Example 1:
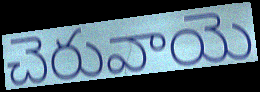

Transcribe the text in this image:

చెరువాయె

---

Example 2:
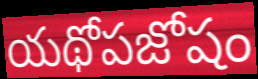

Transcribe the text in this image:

యథోపజోషం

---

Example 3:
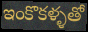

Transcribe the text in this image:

ఇంకొకళ్ళతో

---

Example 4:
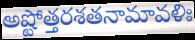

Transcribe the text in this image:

అష్టోత్తరశతనామావళిః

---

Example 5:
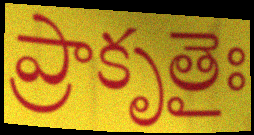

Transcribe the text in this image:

ప్రాకృతైః